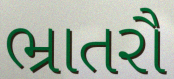
ભ્રાતરૌ